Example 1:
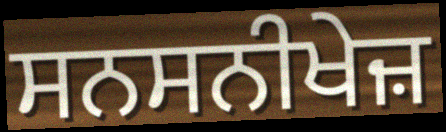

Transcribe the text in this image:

ਸਨਸਨੀਖੇਜ਼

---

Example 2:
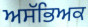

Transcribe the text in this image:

ਅਸੱਭਿਅਕ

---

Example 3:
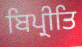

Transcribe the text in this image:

ਬਿਪ੍ਰੀਤਿ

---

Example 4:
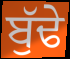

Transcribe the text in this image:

ਬੁੱਢੇ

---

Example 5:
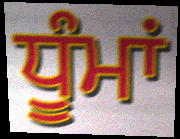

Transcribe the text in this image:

ਧੂੰਮਾਂ